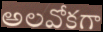
అలవోకగా